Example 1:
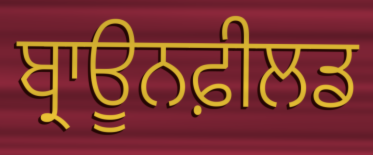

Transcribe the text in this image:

ਬ੍ਰਾਊਨਫ਼ੀਲਡ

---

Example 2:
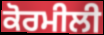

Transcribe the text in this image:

ਕੋਰਮੀਲੀ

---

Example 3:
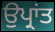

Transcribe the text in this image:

ਉਪ੍ਰਾਂਤ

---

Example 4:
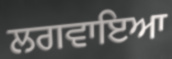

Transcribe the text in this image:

ਲਗਵਾਇਆ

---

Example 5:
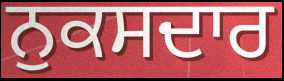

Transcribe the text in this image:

ਨੁਕਸਦਾਰ